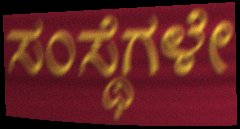
ಸಂಸ್ಥೆಗಳೇ